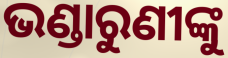
ଭଣ୍ଡାରୁଣୀଙ୍କୁ